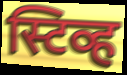
स्टिव्ह